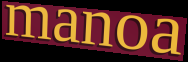
manoa